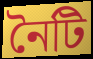
নৈটি